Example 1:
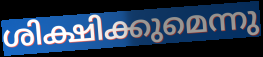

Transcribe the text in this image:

ശിക്ഷിക്കുമെന്നു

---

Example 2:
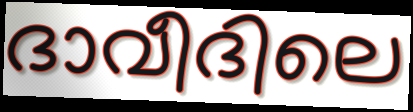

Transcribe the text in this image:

ദാവീദിലെ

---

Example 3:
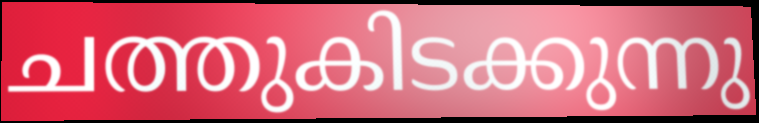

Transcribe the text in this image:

ചത്തുകിടക്കുന്നു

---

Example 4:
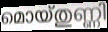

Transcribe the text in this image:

മൊയ്തുണ്ണി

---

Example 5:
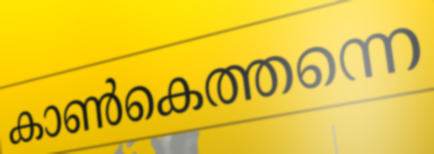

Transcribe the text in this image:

കാൺകെത്തന്നെ